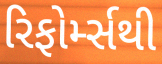
રિફોર્મ્સથી